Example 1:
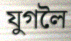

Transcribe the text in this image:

যুগলৈ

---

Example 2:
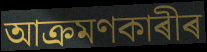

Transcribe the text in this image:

আক্ৰমণকাৰীৰ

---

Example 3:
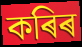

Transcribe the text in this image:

কৰিৰ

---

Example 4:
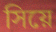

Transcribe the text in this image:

সিয়ে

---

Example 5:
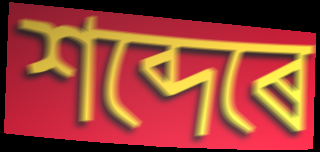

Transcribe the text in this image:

শব্দেৰে